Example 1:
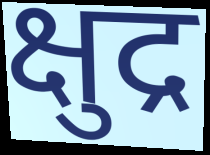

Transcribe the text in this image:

क्षुद्र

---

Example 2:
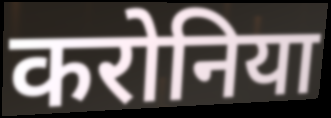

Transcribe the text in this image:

करोनिया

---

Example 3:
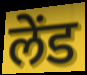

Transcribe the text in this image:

लेंड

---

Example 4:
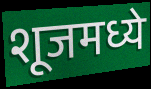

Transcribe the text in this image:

शूजमध्ये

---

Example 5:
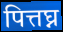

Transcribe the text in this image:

पित्तघ्न